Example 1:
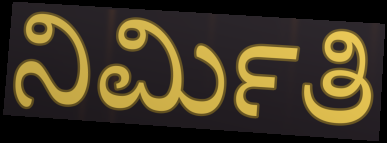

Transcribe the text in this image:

ನಿರ್ಮಿತಿ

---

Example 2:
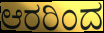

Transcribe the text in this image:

ಆರರಿಂದ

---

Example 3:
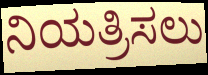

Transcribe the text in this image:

ನಿಯತ್ರಿಸಲು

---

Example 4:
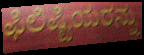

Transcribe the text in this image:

ಫಿಲಿಷ್ಟಿಯರನ್ನು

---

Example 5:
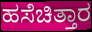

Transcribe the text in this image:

ಹಸೆಚಿತ್ತಾರ